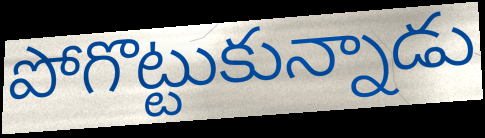
పోగొట్టుకున్నాడు